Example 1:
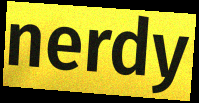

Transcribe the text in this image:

nerdy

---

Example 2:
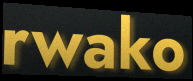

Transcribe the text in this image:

rwako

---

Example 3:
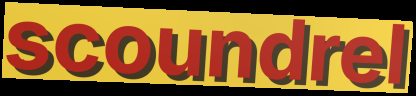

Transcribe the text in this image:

scoundrel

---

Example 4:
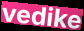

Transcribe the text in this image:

vedike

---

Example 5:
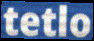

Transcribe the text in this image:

tetlo